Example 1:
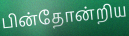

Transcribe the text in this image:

பின்தோன்றிய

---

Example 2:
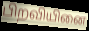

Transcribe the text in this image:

பிறவியினை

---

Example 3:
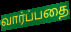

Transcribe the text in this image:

வார்ப்பதை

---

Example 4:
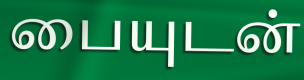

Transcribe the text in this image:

பையுடன்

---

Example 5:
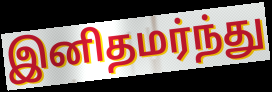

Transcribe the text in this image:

இனிதமர்ந்து